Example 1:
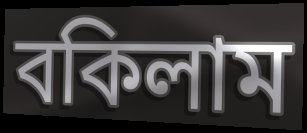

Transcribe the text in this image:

বকিলাম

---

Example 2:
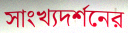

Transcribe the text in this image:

সাংখ্যদর্শনের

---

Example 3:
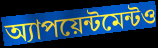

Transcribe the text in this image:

অ্যাপয়েন্টমেন্টও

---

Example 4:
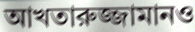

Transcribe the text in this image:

আখতারুজ্জামানও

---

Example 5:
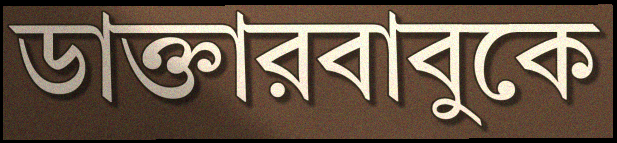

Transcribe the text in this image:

ডাক্তারবাবুকে